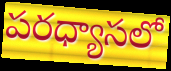
పరధ్యాసలో